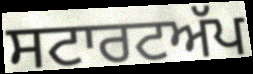
ਸਟਾਰਟਅੱਪ